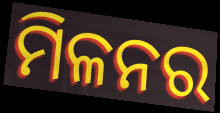
ମିଳନର